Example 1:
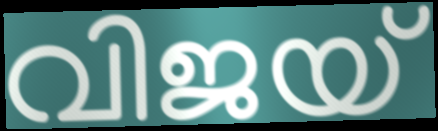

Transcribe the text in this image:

വിജയ്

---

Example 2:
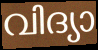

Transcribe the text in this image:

വിദ്യാ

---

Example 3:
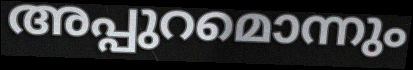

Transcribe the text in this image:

അപ്പുറമൊന്നും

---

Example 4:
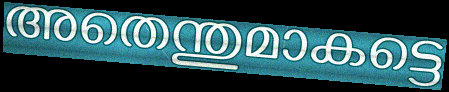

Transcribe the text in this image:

അതെന്തുമാകട്ടെ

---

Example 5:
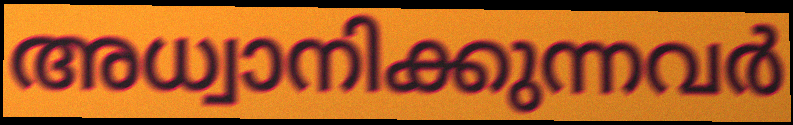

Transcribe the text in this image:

അധ്വാനിക്കുന്നവർ